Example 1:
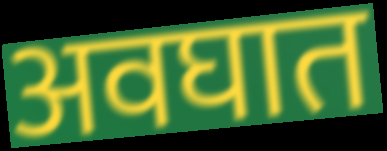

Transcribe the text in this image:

अवघात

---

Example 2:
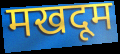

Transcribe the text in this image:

मखदूम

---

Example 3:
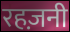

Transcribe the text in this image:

रहज़नी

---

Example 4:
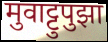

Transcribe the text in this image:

मुवाट्टुपुझा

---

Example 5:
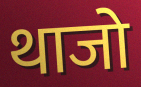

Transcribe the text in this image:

थाजो